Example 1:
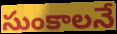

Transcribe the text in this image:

సుంకాలనే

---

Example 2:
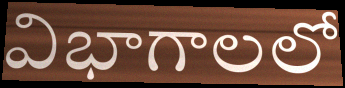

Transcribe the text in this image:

విభాగాలలో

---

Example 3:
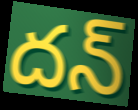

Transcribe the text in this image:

దన్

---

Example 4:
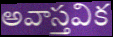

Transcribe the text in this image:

అవాస్తవిక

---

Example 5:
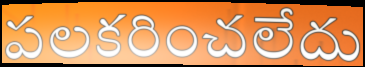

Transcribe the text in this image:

పలకరించలేదు